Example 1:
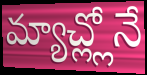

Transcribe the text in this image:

మ్యాచ్ల్లోనే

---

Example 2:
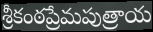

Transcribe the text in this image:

శ్రీకంఠప్రేమపుత్రాయ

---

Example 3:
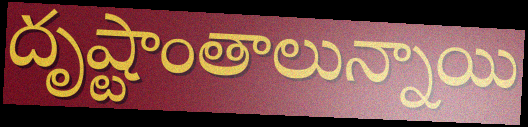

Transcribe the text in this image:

దృష్టాంతాలున్నాయి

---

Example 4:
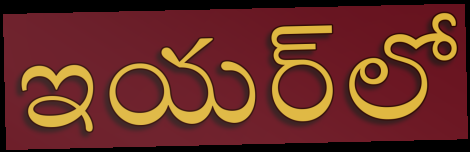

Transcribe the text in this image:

ఇయర్‌లో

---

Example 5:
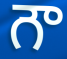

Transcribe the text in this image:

గౌ